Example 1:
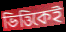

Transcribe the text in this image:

ভিত্তিকেই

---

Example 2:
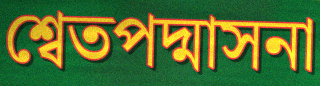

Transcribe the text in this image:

শ্বেতপদ্মাসনা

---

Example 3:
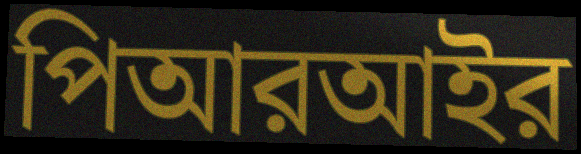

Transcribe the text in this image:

পিআরআইর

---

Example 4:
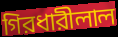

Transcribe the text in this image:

গিরধারীলাল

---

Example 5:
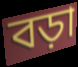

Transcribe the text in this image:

বড়া